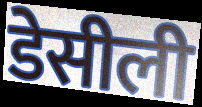
डेसीली